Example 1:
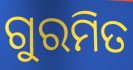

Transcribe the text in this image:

ଗୁରମିତ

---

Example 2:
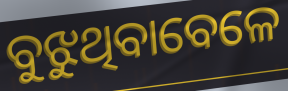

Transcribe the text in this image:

ବୁଝୁଥିବାବେଳେ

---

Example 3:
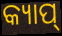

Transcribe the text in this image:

କ୍ୟାପ୍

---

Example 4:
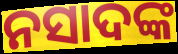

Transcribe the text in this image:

ନସାଦଙ୍କ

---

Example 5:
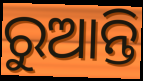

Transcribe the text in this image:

ରୁଆନ୍ତି